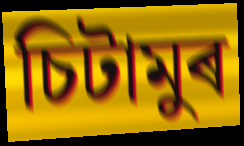
চিটামুৰ